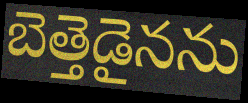
బెత్తెడైనను